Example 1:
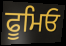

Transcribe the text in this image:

ਫੂਮਿਓ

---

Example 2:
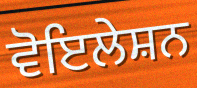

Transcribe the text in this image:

ਵੋਇਲੇਸ਼ਨ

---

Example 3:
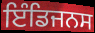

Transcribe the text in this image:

ਇੰਡਿਜਨਸ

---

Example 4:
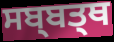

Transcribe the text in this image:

ਸਬ੍ਬਤ੍ਥ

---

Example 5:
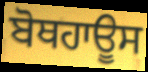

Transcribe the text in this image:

ਬੋਥਹਾਊਸ